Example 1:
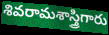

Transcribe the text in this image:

శివరామశాస్త్రిగారు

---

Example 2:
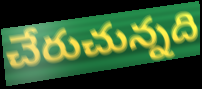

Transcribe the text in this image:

చేరుచున్నది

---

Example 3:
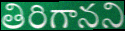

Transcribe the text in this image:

తిరిగానని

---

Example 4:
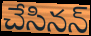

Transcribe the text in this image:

చేసినన్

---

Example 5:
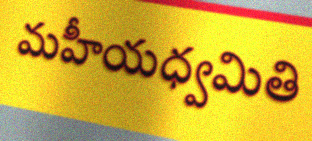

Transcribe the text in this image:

మహీయధ్వమితి